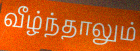
வீழ்ந்தாலும்